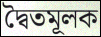
দ্বৈতমূলক